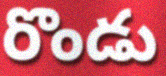
రొండు